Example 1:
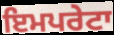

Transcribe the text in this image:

ਇਮਪਰੇਟਾ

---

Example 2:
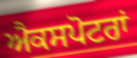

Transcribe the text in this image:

ਐਕਸਪੋਟਰਾਂ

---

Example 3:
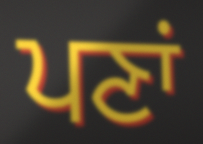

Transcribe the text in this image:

ਪਣਾਂ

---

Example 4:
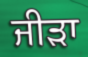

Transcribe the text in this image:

ਜੀੜਾ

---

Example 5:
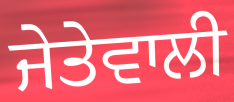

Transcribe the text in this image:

ਜੇਤੇਵਾਲੀ